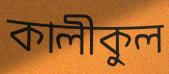
কালীকুল